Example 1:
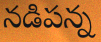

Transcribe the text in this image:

నడిపన్న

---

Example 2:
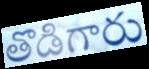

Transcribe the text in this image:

తొడిగారు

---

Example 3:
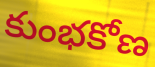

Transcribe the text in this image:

కుంభకోణ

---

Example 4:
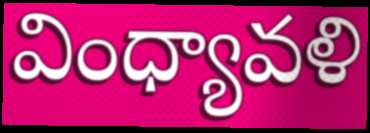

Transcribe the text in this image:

వింధ్యావళి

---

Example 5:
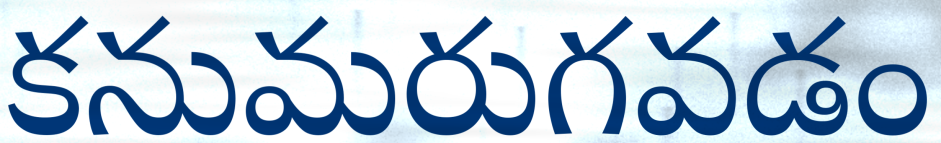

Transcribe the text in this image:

కనుమరుగవడం